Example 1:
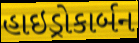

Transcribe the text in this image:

હાઇડ્રોકાર્બન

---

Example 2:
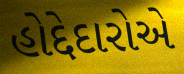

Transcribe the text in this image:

હોદ્દેદારોએ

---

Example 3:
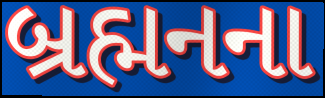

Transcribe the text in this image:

બ્રહ્મનના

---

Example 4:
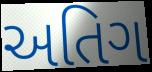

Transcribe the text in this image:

અતિગ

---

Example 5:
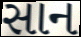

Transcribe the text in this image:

સાન